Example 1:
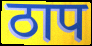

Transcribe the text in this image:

ठाप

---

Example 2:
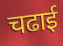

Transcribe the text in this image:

चढाई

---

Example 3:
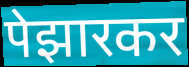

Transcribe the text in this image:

पेझारकर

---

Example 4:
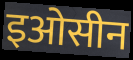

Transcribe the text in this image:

इओसीन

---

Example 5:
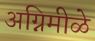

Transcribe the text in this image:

अग्निमीळे